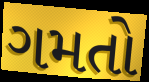
ગમતો